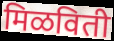
मिळविती